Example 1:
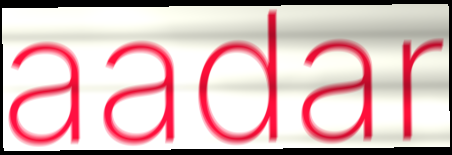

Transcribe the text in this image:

aadar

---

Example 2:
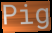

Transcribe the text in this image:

Pig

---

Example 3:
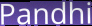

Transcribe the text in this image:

Pandhi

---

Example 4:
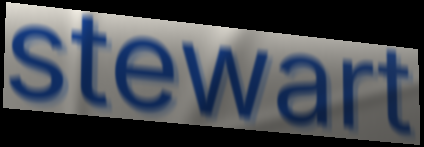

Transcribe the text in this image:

stewart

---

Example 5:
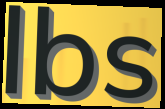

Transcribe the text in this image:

lbs